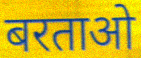
बरताओ